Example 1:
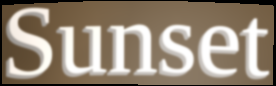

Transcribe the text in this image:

Sunset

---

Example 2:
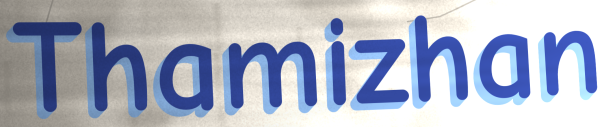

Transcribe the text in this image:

Thamizhan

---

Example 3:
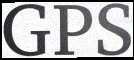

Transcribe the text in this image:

GPS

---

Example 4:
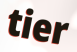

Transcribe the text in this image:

tier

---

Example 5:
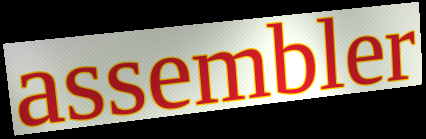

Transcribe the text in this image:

assembler